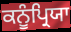
ਕਨੂੰਪ੍ਰਿਯਾ